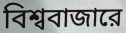
বিশ্ববাজারে